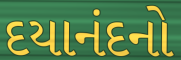
દયાનંદનો